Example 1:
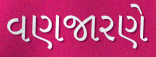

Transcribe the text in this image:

વણજારણે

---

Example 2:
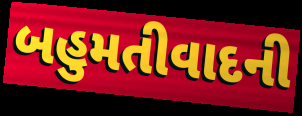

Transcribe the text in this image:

બહુમતીવાદની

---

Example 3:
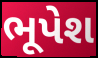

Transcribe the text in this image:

ભૂપેશ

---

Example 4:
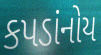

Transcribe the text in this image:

કપડાંનોય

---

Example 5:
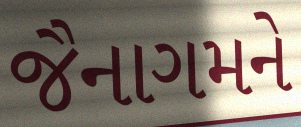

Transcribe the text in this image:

જૈનાગમને